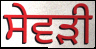
ਸੇਵੜੀ